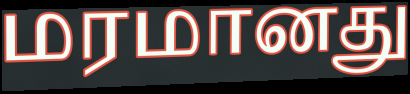
மரமானது